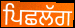
ਪਿਛਲੱਗ